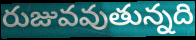
రుజువవుతున్నది